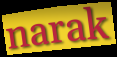
narak